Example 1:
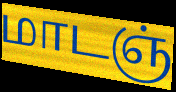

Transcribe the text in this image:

மாடஞ்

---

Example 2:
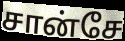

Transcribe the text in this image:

சான்சே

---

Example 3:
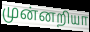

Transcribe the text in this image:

முன்னறியா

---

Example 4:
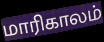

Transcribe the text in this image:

மாரிகாலம்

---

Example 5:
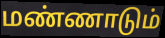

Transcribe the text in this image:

மண்ணாடும்